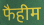
फैहीम